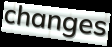
changes